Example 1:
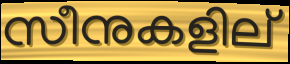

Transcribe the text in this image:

സീനുകളില്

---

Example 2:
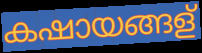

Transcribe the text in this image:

കഷായങ്ങള്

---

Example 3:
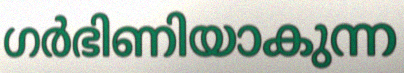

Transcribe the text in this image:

ഗർഭിണിയാകുന്ന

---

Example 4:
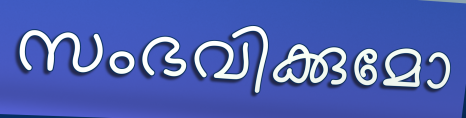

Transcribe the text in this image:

സംഭവിക്കുമോ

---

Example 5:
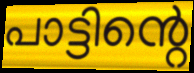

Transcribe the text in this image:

പാട്ടിന്റെ